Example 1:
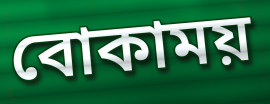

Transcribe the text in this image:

বোকাময়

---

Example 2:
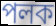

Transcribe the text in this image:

পলক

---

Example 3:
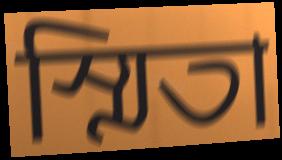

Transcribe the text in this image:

স্মিতা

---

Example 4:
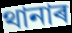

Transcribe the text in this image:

থানাৰ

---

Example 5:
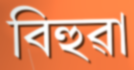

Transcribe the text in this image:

বিহুৱা